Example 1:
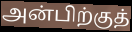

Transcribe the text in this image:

அன்பிற்குத்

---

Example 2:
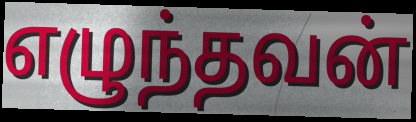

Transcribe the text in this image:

எழுந்தவன்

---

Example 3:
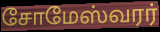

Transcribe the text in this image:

சோமேஸ்வரர்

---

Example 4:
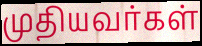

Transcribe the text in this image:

முதியவர்கள்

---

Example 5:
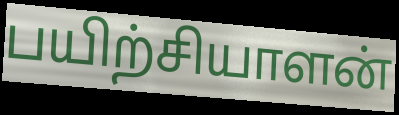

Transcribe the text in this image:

பயிற்சியாளன்